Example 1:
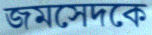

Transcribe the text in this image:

জমসেদকে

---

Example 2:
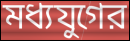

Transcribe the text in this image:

মধ্যযুগের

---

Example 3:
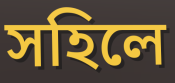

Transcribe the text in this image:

সহিলে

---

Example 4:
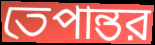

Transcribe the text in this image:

তেপান্তর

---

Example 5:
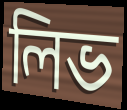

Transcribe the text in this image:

লিভ